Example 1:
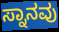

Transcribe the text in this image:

ಸ್ನಾನವು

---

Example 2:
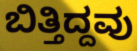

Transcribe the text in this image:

ಬಿತ್ತಿದ್ದವು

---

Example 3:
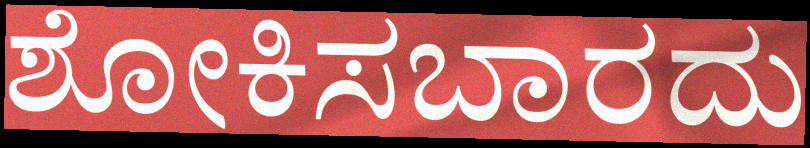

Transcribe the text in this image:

ಶೋಕಿಸಬಾರದು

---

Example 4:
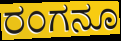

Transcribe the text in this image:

ರಂಗನೂ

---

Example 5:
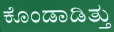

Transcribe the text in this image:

ಕೊಂಡಾಡಿತ್ತು